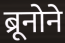
ब्रूनोने